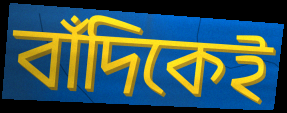
বাঁদিকেই